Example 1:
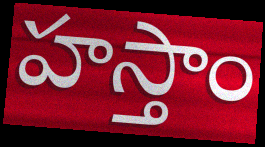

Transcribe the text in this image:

హస్తాం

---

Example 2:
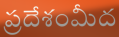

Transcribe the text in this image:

ప్రదేశంమీద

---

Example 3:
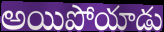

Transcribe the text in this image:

అయిపోయాడు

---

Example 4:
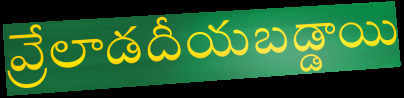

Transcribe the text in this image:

వ్రేలాడదీయబడ్డాయి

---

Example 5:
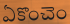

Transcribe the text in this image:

ఏకొంచెం